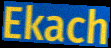
Ekach